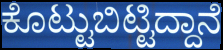
ಕೊಟ್ಟುಬಿಟ್ಟಿದ್ದಾನೆ